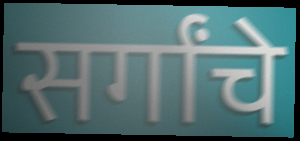
सर्गांचे